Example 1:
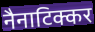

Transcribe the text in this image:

नैनाटिक्कर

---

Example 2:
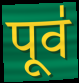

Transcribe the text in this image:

पूव॑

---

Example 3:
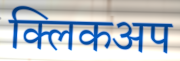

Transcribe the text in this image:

क्लिकअप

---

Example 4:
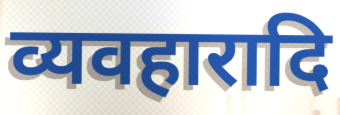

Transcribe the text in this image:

व्यवहारादि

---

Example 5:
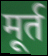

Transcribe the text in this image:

मूर्त